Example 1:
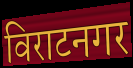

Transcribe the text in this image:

विराटनगर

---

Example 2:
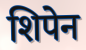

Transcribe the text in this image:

शिपेन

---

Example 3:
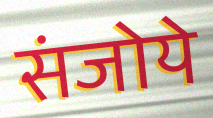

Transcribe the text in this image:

संजोये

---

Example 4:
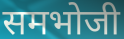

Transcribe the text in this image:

समभोजी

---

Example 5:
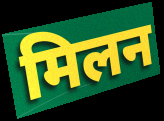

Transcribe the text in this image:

मिलन